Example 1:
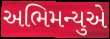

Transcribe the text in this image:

અભિમન્યુએ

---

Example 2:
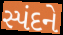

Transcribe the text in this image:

સ્પંદને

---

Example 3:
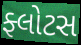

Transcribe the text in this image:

ફ્લોટસ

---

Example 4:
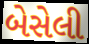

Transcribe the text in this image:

બેસેલી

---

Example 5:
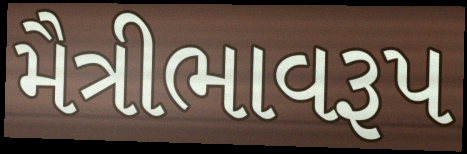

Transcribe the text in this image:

મૈત્રીભાવરૂપ